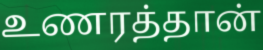
உணரத்தான்